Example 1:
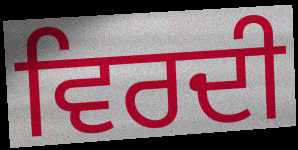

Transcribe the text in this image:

ਵਿਰਦੀ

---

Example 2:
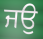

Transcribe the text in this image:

ਜਉ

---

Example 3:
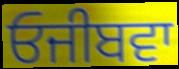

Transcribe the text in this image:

ਓਜੀਬਵਾ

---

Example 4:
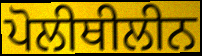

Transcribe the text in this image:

ਪੋਲੀਥੀਲੀਨ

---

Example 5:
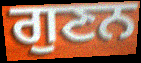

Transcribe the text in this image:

ਗੁਣਨ